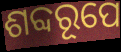
ଶବ୍ଦରୂପେ